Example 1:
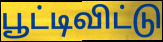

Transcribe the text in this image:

பூட்டிவிட்டு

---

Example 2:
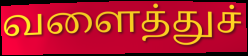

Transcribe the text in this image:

வளைத்துச்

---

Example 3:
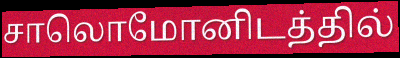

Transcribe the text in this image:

சாலொமோனிடத்தில்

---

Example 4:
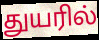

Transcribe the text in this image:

துயரில்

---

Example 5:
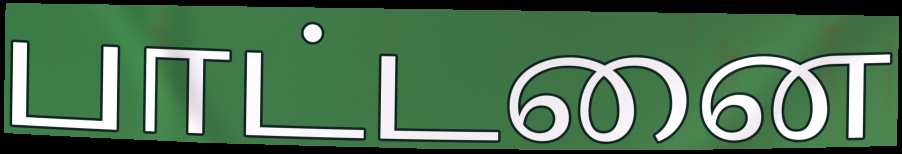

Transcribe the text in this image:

பாட்டனை